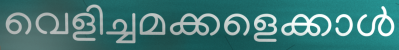
വെളിച്ചമക്കളെക്കാൾ